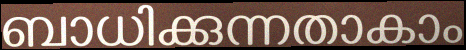
ബാധിക്കുന്നതാകാം